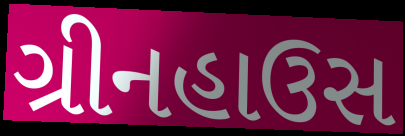
ગ્રીનહાઉસ